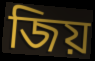
জিয়